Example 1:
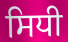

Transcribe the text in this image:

ਸਿਧੀ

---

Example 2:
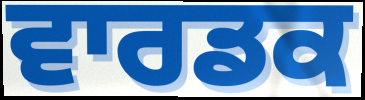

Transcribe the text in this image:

ਵਾਰਡਕ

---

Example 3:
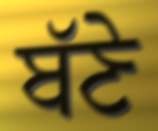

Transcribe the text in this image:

ਬੱਣੇ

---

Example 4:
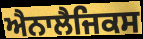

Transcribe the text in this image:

ਐਨਾਲੈਜਿਕਸ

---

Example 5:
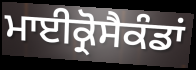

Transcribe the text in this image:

ਮਾਈਕ੍ਰੋਸੈਕੰਡਾਂ